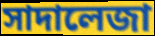
সাদালেজা